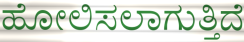
ಹೋಲಿಸಲಾಗುತ್ತಿದೆ